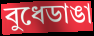
বুধেডাঙা